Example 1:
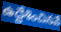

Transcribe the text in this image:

ఉద్దేశించినవే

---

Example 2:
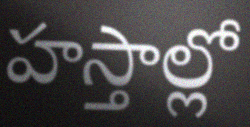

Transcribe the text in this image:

హస్తాల్లో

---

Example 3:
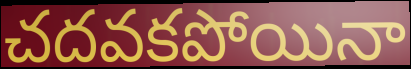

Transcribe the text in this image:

చదవకపోయినా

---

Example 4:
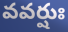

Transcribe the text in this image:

వవర్షుః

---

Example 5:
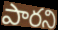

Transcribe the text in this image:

పారని